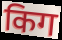
किग